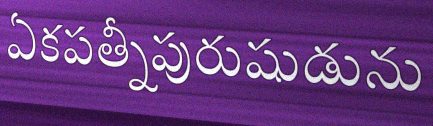
ఏకపత్నీపురుషుడును